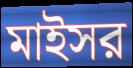
মাইসর